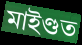
মাইণ্ডত